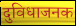
दुविधाजनक